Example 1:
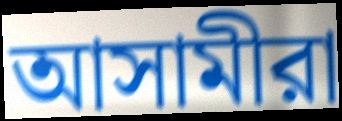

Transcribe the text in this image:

আসামীরা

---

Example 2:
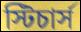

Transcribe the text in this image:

স্টিচার্স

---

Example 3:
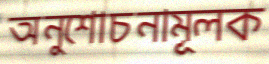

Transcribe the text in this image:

অনুশোচনামূলক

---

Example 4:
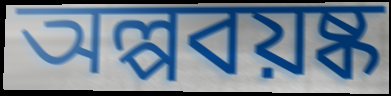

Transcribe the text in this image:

অল্পবয়ষ্ক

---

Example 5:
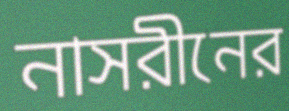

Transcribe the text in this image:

নাসরীনের